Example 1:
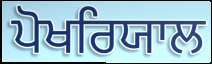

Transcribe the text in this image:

ਪੋਖਰਿਯਾਲ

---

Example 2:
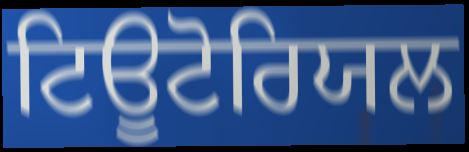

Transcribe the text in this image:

ਟਿਊਟੋਰਿਯਲ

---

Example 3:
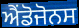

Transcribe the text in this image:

ਐਂਡੋਜੋਨਸ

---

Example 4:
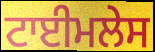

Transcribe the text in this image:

ਟਾਈਮਲੇਸ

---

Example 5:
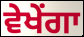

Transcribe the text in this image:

ਵੇਖੇਂਗਾ